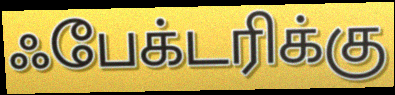
ஃபேக்டரிக்கு